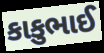
કાકુભાઈ